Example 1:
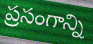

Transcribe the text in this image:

ప్రసంగాన్ని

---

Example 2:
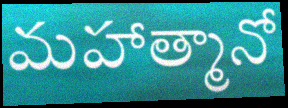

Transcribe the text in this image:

మహాత్మానో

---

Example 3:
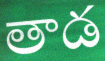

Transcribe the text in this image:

తాడ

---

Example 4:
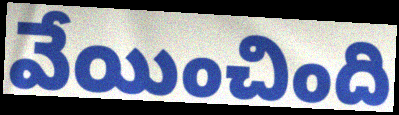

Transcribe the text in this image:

వేయించింది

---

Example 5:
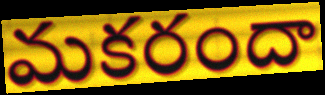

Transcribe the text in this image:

మకరందా